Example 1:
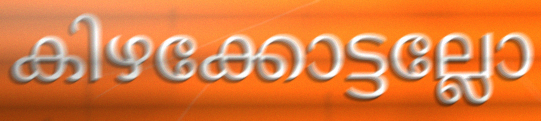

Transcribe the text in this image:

കിഴക്കോട്ടല്ലോ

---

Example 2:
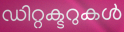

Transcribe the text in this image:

ഡിറ്റക്ടറുകൾ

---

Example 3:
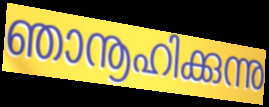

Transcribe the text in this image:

ഞാനൂഹിക്കുന്നു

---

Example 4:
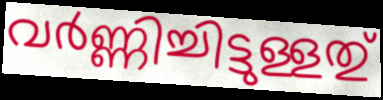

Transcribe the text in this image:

വർണ്ണിച്ചിട്ടുള്ളതു്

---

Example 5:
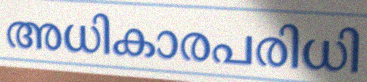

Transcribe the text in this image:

അധികാരപരിധി